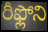
రీఫ్లోని